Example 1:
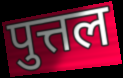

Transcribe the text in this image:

पुत्तल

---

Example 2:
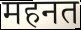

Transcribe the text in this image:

महनत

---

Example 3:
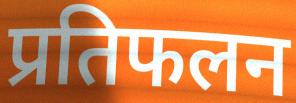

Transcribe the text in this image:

प्रतिफलन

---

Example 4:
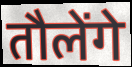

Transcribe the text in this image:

तौलेंगे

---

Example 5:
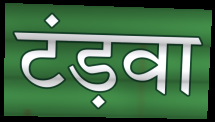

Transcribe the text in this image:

टंड़वा